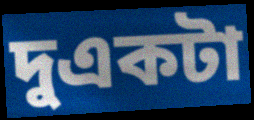
দুএকটা